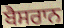
ਬੈਸਰਾਨ